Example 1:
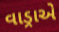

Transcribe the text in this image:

વાડ્રાએ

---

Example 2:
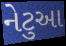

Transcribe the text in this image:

નેટુઆ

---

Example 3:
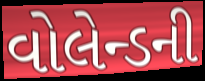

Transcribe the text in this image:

વોલેન્ડની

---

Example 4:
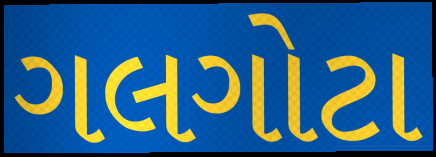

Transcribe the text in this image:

ગલગોટા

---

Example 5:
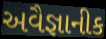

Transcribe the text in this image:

અવૈજ્ઞાનીક